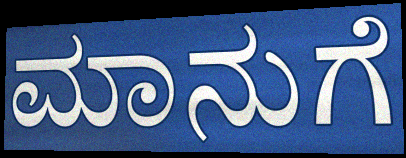
ಮಾನುಗೆ